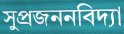
সুপ্রজননবিদ্যা